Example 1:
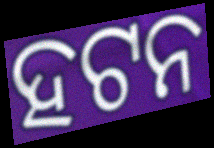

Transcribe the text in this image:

ହଟନ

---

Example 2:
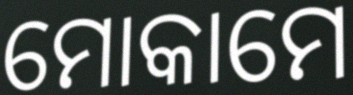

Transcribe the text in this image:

ମୋକାମେ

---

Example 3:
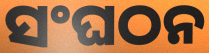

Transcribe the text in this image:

ସଂଘଠନ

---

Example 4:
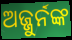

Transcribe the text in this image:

ଅଜ୍ଜୁର୍ନଙ୍କ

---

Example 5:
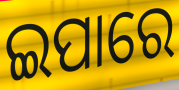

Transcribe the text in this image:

ଇପାରେ